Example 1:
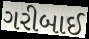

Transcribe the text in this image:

ગરીબાઈ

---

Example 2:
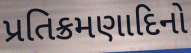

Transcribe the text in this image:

પ્રતિક્રમણાદિનો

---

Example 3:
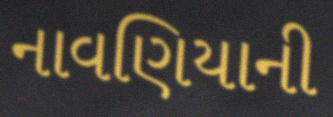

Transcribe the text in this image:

નાવણિયાની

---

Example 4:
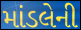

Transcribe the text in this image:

માંડલેની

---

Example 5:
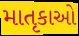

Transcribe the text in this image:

માતૃકાઓ